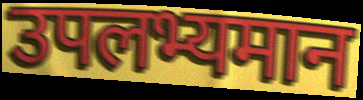
उपलभ्यमान